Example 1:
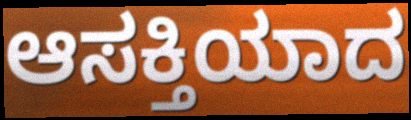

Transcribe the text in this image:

ಆಸಕ್ತಿಯಾದ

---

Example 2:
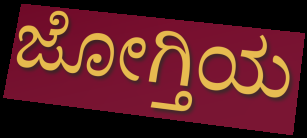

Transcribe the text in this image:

ಜೋಗ್ತಿಯ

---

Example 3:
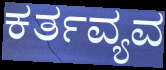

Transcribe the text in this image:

ಕರ್ತವ್ಯವ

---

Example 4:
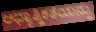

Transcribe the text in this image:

ಆಧ್ಯಾತ್ಮಿಕತೆಯನ್ನು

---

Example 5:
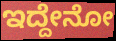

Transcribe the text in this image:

ಇದ್ದೇನೋ